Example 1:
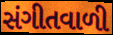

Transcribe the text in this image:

સંગીતવાળી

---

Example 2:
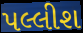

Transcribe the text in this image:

પલ્લીશ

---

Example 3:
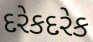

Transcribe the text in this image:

દરેકદરેક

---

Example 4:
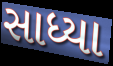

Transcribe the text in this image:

સાધ્યા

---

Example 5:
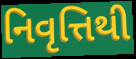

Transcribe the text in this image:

નિવૃત્તિથી